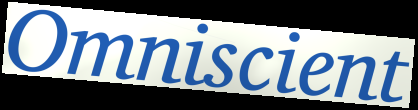
Omniscient